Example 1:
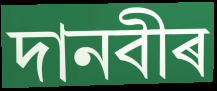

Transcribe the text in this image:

দানবীৰ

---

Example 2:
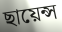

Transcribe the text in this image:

ছায়েন্স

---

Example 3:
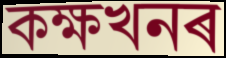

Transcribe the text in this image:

কক্ষখনৰ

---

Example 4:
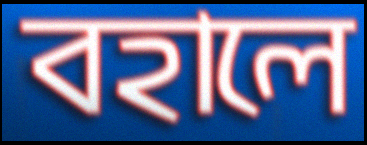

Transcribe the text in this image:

বহালে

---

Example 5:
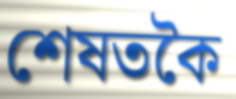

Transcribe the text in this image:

শেষতকৈ